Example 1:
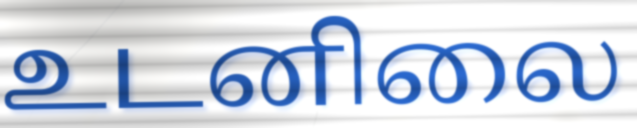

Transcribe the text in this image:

உடனிலை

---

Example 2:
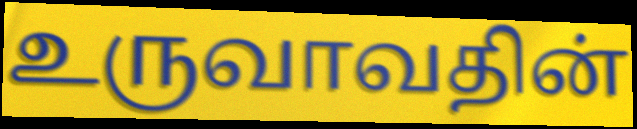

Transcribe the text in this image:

உருவாவதின்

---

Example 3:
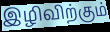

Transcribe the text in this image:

இழிவிற்கும்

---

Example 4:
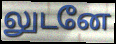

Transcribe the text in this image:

லுடனே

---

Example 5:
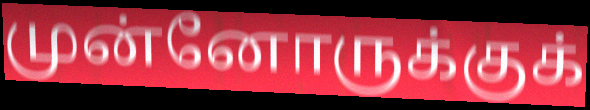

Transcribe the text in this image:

முன்னோருக்குக்